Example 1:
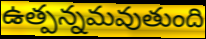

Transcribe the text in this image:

ఉత్పన్నమవుతుంది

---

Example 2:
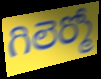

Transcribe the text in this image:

గిలెర్మో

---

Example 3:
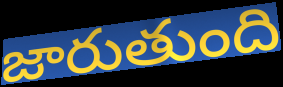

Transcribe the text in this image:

జారుతుంది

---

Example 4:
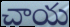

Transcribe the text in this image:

చాయ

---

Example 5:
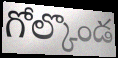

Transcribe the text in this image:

గోల్కొండ